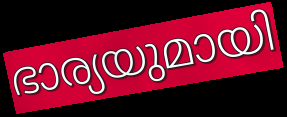
ഭാര്യയുമായി